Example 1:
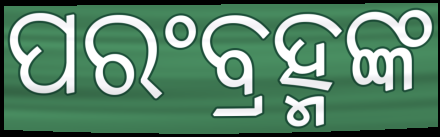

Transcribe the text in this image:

ପରଂବ୍ରହ୍ମଙ୍କ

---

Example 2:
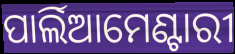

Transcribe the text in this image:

ପାର୍ଲିଆମେଣ୍ଟାରୀ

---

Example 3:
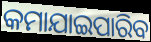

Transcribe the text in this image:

କମାଯାଇପାରିବ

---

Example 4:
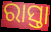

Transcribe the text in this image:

ରାସ୍ତା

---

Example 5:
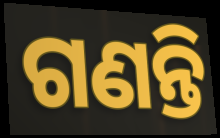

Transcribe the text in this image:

ଗଣନ୍ତି